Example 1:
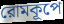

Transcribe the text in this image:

রোমকূপে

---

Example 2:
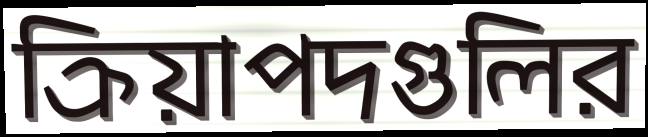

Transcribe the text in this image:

ক্রিয়াপদগুলির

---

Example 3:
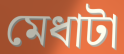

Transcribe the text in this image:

মেধাটা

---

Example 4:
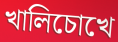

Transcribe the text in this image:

খালিচোখে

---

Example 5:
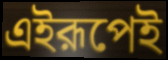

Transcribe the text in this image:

এইরূপেই